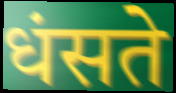
धंसते